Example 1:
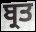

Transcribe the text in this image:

ਬ੍ਰਤ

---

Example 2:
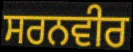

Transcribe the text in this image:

ਸਰਨਵੀਰ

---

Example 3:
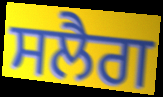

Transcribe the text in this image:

ਸਲੈਗ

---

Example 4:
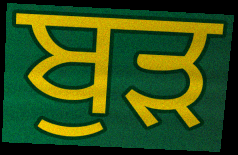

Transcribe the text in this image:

ਬੁੜ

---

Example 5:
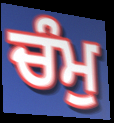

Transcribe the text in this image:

ਚੰਮੁ